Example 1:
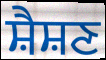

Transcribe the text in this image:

ਸ਼ੈਸ਼ਣ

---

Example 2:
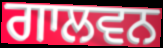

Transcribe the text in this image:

ਗਾਲਵਨ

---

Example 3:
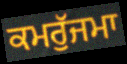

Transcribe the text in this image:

ਕਮਰੁੱਜਮਾ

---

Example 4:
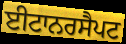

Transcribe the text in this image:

ਈਟਾਨਰਸੈਪਟ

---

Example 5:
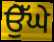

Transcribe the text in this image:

ਉੇੱਘੇ